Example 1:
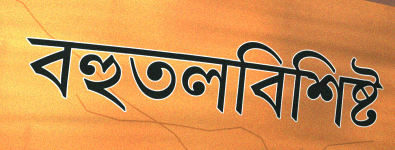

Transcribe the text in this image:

বহুতলবিশিষ্ট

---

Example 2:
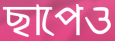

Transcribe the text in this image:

ছাপেও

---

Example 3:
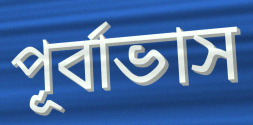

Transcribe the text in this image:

পূর্বাভাস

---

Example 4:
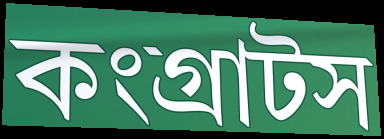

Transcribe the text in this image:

কংগ্রাটস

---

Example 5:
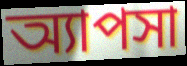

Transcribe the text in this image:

অ্যাপসা